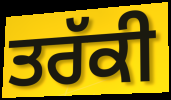
ਤਰੱਕੀ